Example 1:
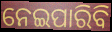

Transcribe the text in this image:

ନେଇପାରିବି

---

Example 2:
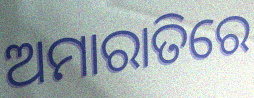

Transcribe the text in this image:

ଅମାରାତିରେ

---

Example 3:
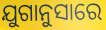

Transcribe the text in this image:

ଯୁଗାନୁସାରେ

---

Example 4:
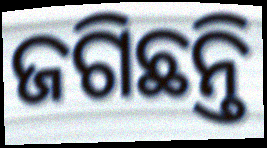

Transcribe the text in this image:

ଜଗିଛନ୍ତି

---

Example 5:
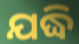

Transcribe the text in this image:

ଯଦ୍ଧି